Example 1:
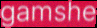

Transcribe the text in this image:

gamshe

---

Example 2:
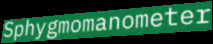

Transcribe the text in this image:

Sphygmomanometer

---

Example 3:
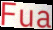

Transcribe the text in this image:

Fua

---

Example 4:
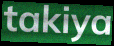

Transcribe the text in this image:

takiya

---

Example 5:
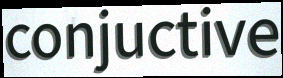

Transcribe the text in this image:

conjuctive